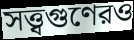
সত্ত্বগুণেরও